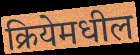
क्रियेमधील